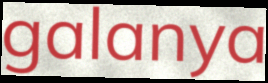
galanya